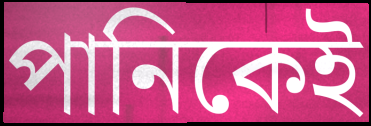
পানিকেই